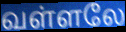
வள்ளலே